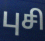
புசி